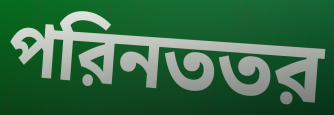
পরিনততর